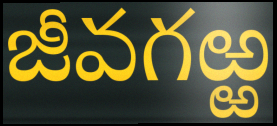
జీవగఱ్ఱ